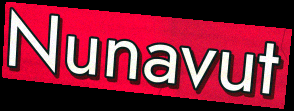
Nunavut